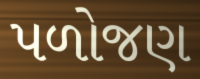
પળોજણ